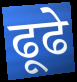
ढूढे